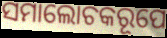
ସମାଲୋଚକରୂପେ